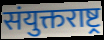
संयुक्तराष्ट्र